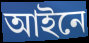
আইনে